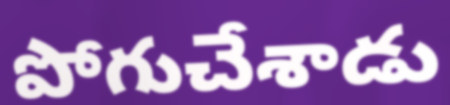
పోగుచేశాడు